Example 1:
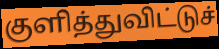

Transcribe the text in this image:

குளித்துவிட்டுச்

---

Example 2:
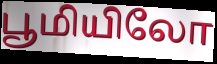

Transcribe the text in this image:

பூமியிலோ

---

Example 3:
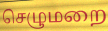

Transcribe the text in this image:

செழுமறை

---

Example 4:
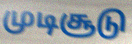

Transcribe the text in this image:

முடிசூடு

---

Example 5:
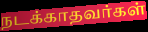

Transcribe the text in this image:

நடக்காதவர்கள்